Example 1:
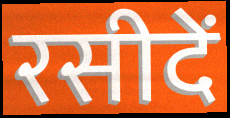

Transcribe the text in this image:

रसीदें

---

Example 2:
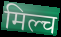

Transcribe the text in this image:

मिल्च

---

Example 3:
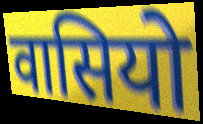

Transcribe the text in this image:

वासियो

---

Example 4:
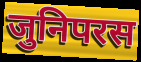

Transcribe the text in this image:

जुनिपरस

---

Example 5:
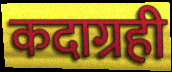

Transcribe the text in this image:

कदाग्रही